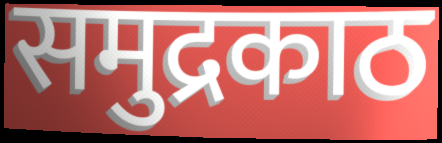
समुद्रकाठ